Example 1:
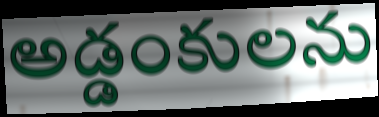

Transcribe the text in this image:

అడ్డంకులను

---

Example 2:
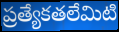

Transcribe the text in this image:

ప్రత్యేకతలేమిటి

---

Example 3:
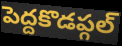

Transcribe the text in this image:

పెద్దకొడప్గల్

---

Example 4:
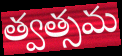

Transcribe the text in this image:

త్వత్సమ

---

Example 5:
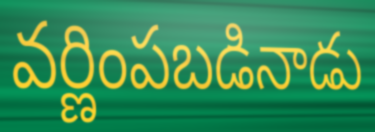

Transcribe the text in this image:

వర్ణింపబడినాడు